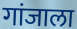
गांजाला